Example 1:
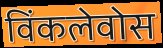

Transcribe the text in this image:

विंकलेवोस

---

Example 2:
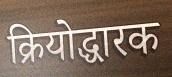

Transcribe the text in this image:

क्रियोद्धारक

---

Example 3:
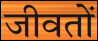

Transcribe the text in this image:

जीवतों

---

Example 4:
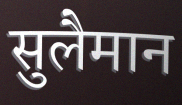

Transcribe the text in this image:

सुलैमान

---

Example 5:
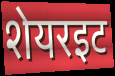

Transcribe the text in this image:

शेयरइट